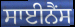
ਸਾਈਨੈਂਸ